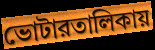
ভোটারতালিকায়